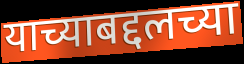
याच्याबद्दलच्या